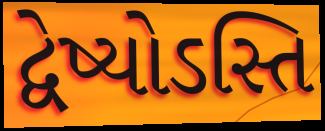
દ્વેષ્યોઽસ્તિ